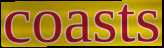
coasts